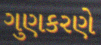
ગુણકરણે